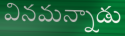
వినమన్నాడు